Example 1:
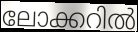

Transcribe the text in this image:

ലോക്കറിൽ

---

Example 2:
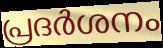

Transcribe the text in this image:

പ്രദർശനം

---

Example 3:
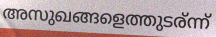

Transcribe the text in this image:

അസുഖങ്ങളെത്തുടര്ന്ന്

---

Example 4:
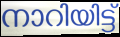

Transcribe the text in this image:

നാറിയിട്ട്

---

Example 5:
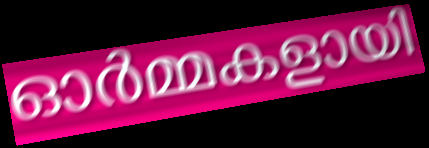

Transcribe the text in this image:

ഓർമ്മകളായി